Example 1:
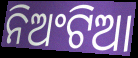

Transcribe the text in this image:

ନିଅଂଟିଆ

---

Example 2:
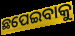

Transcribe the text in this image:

ଛପେଇବାକୁ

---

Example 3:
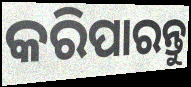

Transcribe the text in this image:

କରିପାରନ୍ତୁ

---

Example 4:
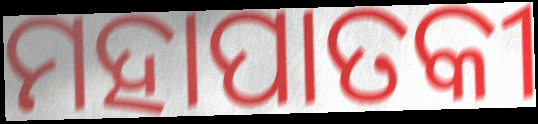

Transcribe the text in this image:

ମହାପାତକୀ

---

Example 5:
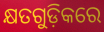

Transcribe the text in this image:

କ୍ଷତଗୁଡ଼ିକରେ